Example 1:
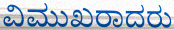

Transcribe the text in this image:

ವಿಮುಖರಾದರು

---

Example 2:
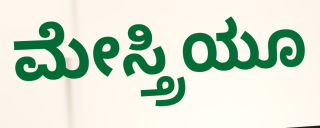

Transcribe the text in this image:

ಮೇಸ್ತ್ರಿಯೂ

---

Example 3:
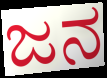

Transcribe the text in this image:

ಜನ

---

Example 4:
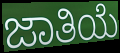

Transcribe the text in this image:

ಜಾತಿಯೆ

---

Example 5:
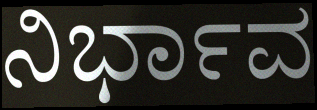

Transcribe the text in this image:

ನಿರ್ಭಾವ